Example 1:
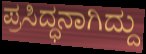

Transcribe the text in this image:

ಪ್ರಸಿದ್ಧನಾಗಿದ್ದು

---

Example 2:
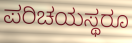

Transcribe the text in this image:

ಪರಿಚಯಸ್ಥರೂ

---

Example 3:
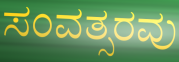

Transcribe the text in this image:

ಸಂವತ್ಸರವು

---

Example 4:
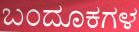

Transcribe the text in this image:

ಬಂದೂಕಗಳ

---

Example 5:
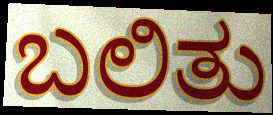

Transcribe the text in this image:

ಬಲಿತು